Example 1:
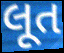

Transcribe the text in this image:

લૂત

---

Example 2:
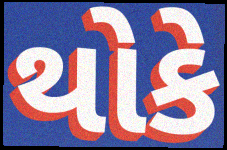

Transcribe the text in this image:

થોકે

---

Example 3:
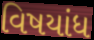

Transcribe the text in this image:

વિષયાંધ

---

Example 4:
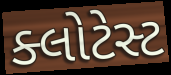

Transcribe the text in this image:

ક્લોટેસ્ટ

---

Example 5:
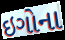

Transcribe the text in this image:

ઇગોના